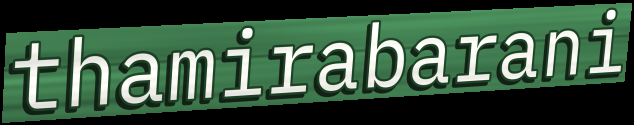
thamirabarani